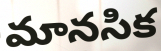
మానసిక